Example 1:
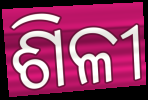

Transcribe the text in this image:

ଶିଳୀ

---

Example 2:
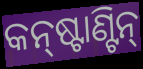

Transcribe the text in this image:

କନ୍‌ଷ୍ଟାଣ୍ଟିନ୍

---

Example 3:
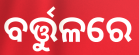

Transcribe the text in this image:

ବର୍ତ୍ତୁଳରେ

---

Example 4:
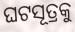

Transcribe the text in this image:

ଘଟସୂତ୍ରକୁ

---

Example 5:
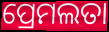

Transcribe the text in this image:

ପ୍ରେମଲତା